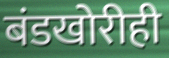
बंडखोरीही